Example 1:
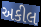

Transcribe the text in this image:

અકીલ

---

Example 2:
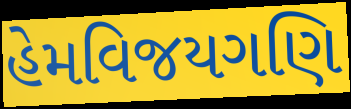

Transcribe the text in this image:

હેમવિજયગણિ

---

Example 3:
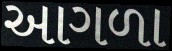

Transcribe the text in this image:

આગળા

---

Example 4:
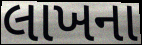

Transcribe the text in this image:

લાખના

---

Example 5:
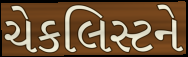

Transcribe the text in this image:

ચેકલિસ્ટને